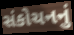
સંકોચનનું